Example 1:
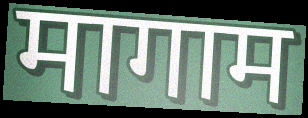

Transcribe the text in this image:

मागाम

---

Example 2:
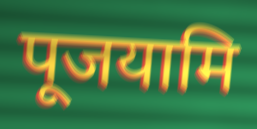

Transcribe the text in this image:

पूजयामि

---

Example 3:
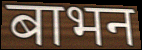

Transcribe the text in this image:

बाभन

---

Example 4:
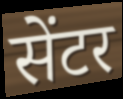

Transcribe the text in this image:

सेंटर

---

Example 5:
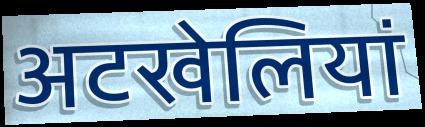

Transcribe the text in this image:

अटखेलियां